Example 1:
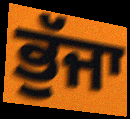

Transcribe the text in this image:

ਭੁੱਜਾ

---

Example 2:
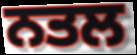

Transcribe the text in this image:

ਨਤਲ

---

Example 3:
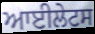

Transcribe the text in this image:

ਆਈਲੇਟਸ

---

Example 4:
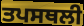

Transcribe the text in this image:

ਤਪਸਥਲੀ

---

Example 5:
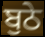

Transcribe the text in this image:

ਬੁਠੇ